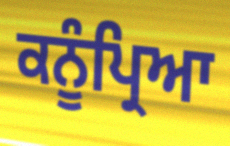
ਕਨੂੰਪ੍ਰਿਆ